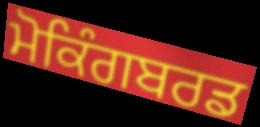
ਮੋਕਿੰਗਬਰਡ